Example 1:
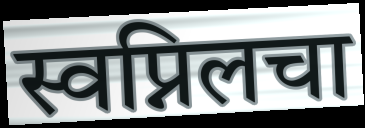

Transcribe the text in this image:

स्वप्निलचा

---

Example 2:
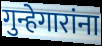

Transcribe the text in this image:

गुन्हेगारांना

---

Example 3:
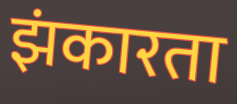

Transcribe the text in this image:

झंकारता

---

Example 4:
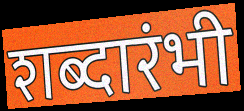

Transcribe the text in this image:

शब्दारंभी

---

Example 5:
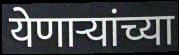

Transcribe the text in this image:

येणाऱ्यांच्या